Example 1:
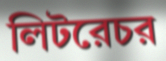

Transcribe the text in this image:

লিটরেচর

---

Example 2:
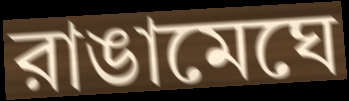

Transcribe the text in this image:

রাঙামেঘে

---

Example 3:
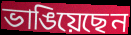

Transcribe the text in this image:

ভাঙিয়েছেন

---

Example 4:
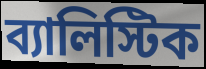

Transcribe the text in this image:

ব্যালিস্টিক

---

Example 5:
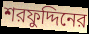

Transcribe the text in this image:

শরফুদ্দিনের